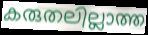
കരുതലില്ലാത്ത